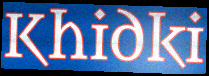
Khidki